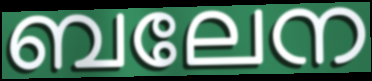
ബലേന